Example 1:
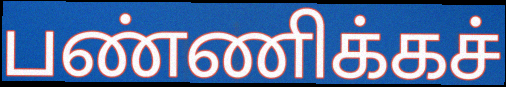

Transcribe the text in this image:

பண்ணிக்கச்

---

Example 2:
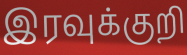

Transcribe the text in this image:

இரவுக்குறி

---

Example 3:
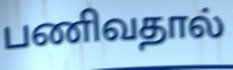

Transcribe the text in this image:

பணிவதால்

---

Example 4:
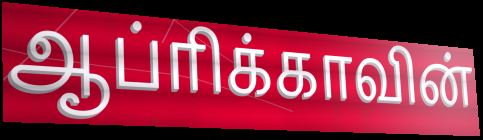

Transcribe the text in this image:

ஆப்ரிக்காவின்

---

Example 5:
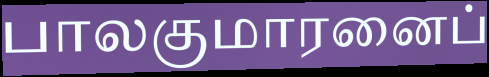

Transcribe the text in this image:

பாலகுமாரனைப்